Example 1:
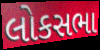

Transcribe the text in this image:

લોકસભા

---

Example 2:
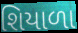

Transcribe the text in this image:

શિયાળા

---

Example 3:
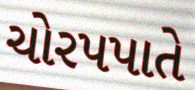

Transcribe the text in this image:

ચોરપપાતે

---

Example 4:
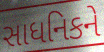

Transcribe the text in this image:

સાધનિકને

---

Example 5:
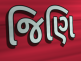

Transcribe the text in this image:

જિણિ